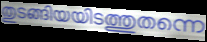
തുടങ്ങിയയിടത്തുതന്നെ